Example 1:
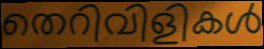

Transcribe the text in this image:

തെറിവിളികൾ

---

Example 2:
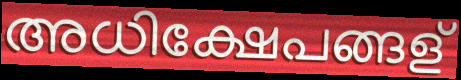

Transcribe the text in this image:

അധിക്ഷേപങ്ങള്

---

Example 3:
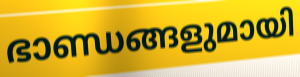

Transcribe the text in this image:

ഭാണ്ഡങ്ങളുമായി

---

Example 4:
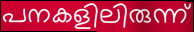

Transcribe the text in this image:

പനകളിലിരുന്ന്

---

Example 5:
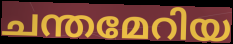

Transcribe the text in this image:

ചന്തമേറിയ